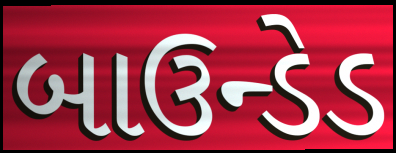
બાઉન્ડેડ